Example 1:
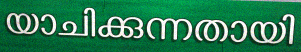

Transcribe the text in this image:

യാചിക്കുന്നതായി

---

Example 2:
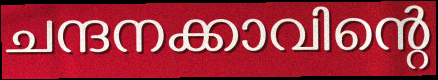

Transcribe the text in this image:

ചന്ദനക്കാവിന്റെ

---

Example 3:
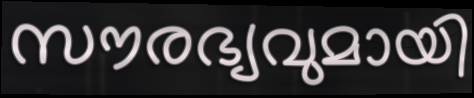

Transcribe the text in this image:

സൗരഭ്യവുമായി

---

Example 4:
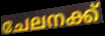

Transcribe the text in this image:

ചേലനക്ക്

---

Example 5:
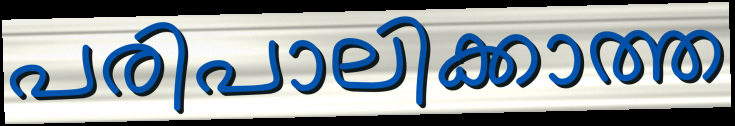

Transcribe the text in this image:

പരിപാലിക്കാത്ത